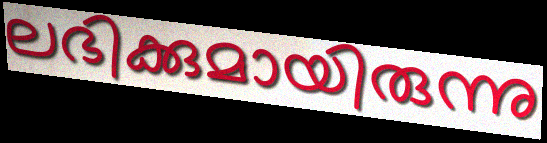
ലഭിക്കുമായിരുന്നു